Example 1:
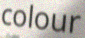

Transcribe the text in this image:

colour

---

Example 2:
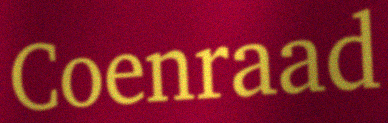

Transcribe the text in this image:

Coenraad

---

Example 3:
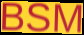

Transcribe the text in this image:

BSM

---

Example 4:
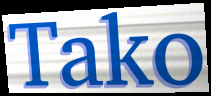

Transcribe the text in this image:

Tako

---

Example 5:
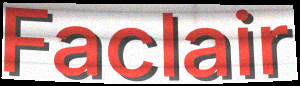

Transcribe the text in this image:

Faclair